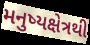
મનુષ્યક્ષેત્રથી